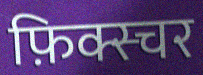
फ़िक्स्चर